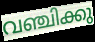
വഞ്ചിക്കു